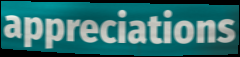
appreciations